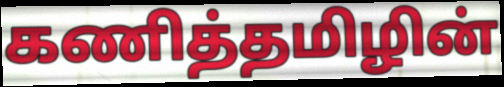
கணித்தமிழின்